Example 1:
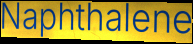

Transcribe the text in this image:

Naphthalene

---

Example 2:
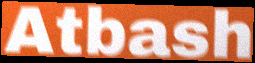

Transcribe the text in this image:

Atbash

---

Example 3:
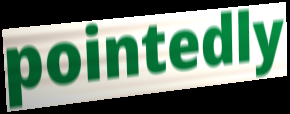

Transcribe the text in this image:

pointedly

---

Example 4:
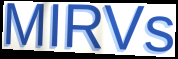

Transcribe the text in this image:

MIRVs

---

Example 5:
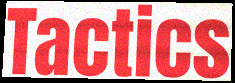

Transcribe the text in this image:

Tactics